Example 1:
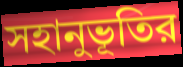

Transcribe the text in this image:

সহানুভূতির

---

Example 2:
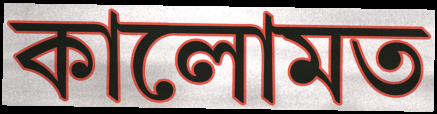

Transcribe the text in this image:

কালোমত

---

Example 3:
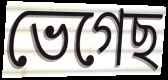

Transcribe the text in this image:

ভেগেছ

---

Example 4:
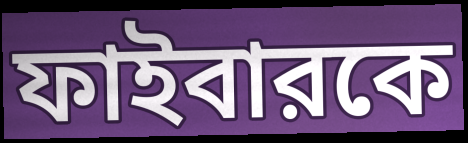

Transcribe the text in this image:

ফাইবারকে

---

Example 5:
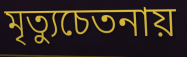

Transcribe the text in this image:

মৃত্যুচেতনায়